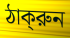
ঠাক্‌রুন